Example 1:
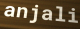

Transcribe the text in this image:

anjali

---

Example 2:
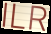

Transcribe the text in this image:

ILR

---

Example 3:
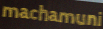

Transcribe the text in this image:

machamuni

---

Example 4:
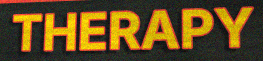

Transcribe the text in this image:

THERAPY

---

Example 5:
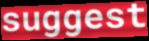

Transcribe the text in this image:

suggest